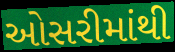
ઓસરીમાંથી